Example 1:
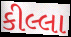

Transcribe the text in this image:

કીલ્લા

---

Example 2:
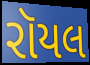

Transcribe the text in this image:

રૉયલ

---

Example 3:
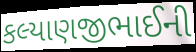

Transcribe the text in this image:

કલ્યાણજીભાઈની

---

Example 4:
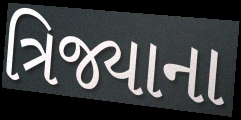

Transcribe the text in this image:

ત્રિજ્યાના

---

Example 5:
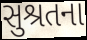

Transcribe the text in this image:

સુશ્રતના